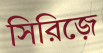
সিরিজ়ে